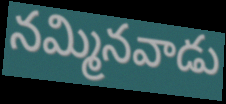
నమ్మినవాడు